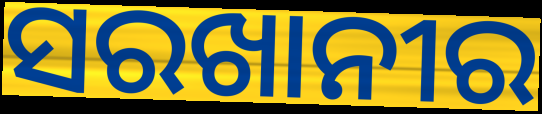
ସରଖାନୀର